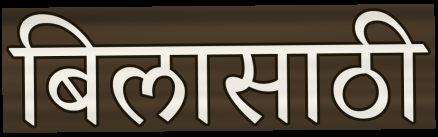
बिलासाठी